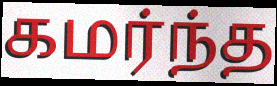
கமர்ந்த